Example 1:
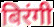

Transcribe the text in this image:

बिरंगी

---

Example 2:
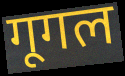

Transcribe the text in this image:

गूगल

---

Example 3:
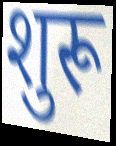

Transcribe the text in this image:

शुरू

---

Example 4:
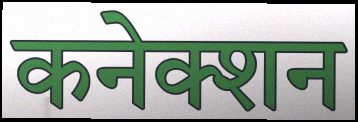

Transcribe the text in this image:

कनेक्शन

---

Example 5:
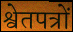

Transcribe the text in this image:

श्वेतपत्रों